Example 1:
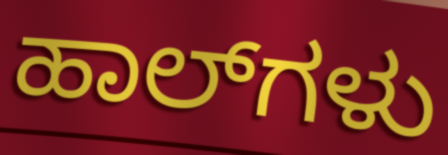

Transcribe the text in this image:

ಹಾಲ್‌ಗಳು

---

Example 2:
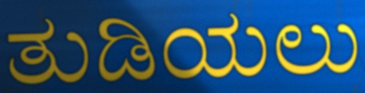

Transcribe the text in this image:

ತುಡಿಯಲು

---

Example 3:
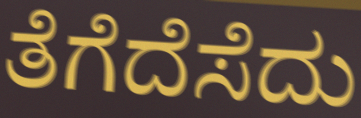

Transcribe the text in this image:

ತೆಗೆದೆಸೆದು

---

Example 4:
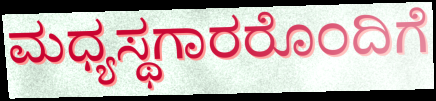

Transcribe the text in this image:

ಮಧ್ಯಸ್ಥಗಾರರೊಂದಿಗೆ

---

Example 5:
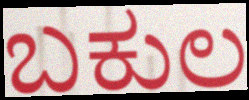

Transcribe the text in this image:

ಬಕುಲ